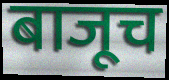
बाजूच